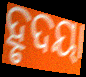
ହୃଦୟା